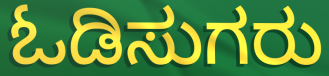
ಓಡಿಸುಗರು